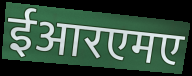
ईआरएमए